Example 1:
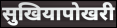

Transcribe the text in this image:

सुखियापोखरी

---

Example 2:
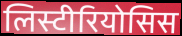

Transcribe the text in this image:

लिस्टीरियोसिस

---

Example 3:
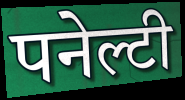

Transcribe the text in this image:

पनेल्टी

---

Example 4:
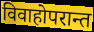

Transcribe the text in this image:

विवाहोपरान्त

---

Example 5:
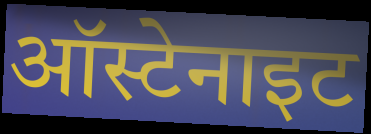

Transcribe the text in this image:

ऑस्टेनाइट